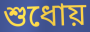
শুধোয়